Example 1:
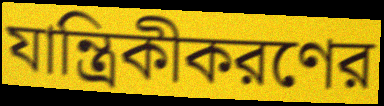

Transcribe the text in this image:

যান্ত্রিকীকরণের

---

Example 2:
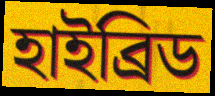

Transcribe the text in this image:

হাইব্রিড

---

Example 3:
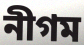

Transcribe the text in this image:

নীগম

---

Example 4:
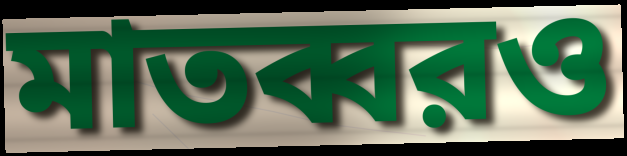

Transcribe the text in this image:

মাতব্বরও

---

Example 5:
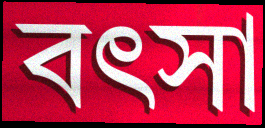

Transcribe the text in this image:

বৎসা